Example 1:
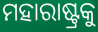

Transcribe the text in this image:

ମହାରାଷ୍ଟ୍ରକୁ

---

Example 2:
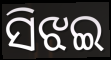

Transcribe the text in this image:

ସିଝଇ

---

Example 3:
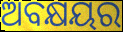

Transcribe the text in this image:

ଅବକ୍ଷୟର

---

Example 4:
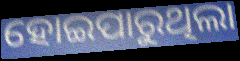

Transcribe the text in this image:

ହୋଇପାରୁଥିଲା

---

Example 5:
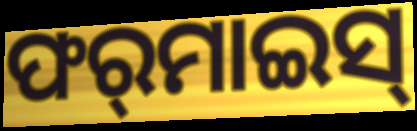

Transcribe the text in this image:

ଫର୍‌ମାଇସ୍